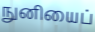
நுனியைப்